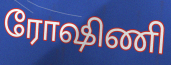
ரோஷிணி